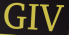
GIV